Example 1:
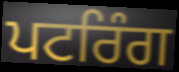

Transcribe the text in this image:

ਪਟਰਿੰਗ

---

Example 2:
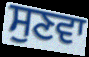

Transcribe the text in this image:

ਸੁਣਵਾ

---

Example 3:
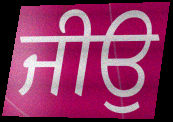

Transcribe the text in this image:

ਜੀਉ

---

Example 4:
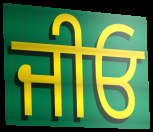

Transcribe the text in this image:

ਜੀਓ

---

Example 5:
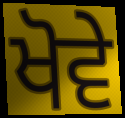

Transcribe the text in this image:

ਖੋਵੇ